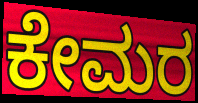
ಕೇಮರ